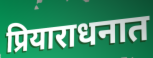
प्रियाराधनात